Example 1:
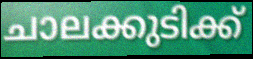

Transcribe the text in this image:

ചാലക്കുടിക്ക്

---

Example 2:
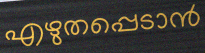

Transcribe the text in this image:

എഴുതപ്പെടാൻ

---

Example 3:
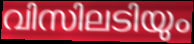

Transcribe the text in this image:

വിസിലടിയും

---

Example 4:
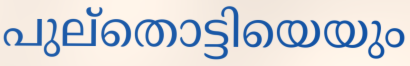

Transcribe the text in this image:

പുല്തൊട്ടിയെയും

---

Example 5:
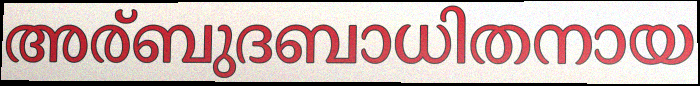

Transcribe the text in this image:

അര്ബുദബാധിതനായ